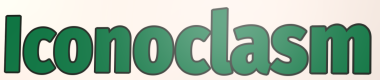
Iconoclasm